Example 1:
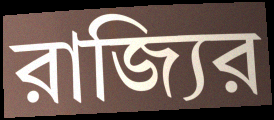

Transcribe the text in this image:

রাজ্যির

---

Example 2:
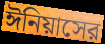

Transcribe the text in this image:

ঈনিয়াসের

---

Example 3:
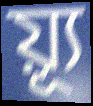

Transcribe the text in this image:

য়্যূ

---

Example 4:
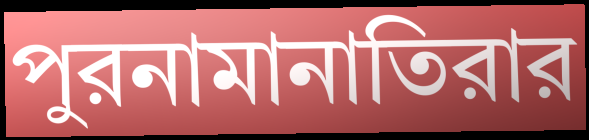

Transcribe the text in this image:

পুরনামানাতিরার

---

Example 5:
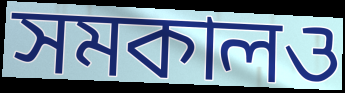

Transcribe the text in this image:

সমকালও